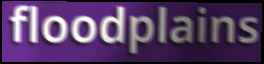
floodplains